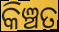
କିଞ୍ଚତ